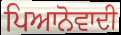
ਪਿਆਨੋਵਾਦੀ